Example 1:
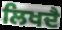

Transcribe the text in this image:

ਲਿਖਦੈ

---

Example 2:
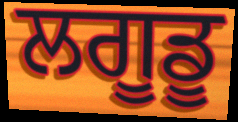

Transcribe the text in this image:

ਲਗੂਡੂ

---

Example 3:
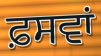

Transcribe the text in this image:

ਫ਼ਸਵਾਂ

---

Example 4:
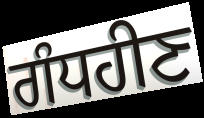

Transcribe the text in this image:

ਗੰਧਹੀਣ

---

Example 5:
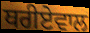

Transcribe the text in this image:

ਥਰੀਏਵਾਲ